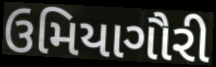
ઉમિયાગૌરી